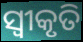
ସ୍ବୀକୃତି